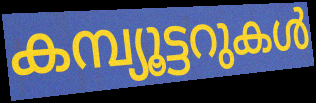
കമ്പ്യൂട്ടറുകൾ